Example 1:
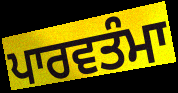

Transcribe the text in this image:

ਪਾਰਵਤੰਮਾ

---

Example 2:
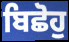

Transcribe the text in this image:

ਬਿਛੋਹੁ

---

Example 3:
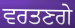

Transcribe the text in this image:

ਵਰਤਣਗੇ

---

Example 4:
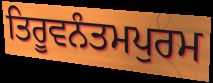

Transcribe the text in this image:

ਤਿਰੂਵਨੰਤਮਪੁਰਮ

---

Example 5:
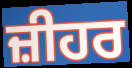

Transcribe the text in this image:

ਜ਼ੀਹਰ